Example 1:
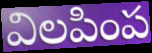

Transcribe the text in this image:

విలపింప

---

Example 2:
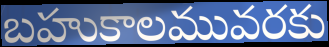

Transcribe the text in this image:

బహుకాలమువరకు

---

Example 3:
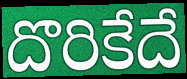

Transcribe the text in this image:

దొరికేదే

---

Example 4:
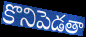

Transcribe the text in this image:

కొనిపెడతా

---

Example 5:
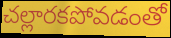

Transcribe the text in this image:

చల్లారకపోవడంతో